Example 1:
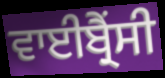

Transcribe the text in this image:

ਵਾਈਬ੍ਰੈਂਸੀ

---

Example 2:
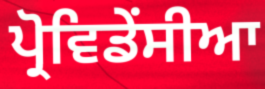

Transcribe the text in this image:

ਪ੍ਰੋਵਿਡੇਂਸੀਆ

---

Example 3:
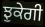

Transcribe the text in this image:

ਝੁਕੇਗੀ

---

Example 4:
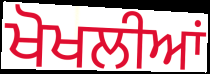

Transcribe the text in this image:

ਖੋਖਲੀਆਂ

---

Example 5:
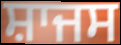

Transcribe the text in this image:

ਸ਼ਾਜਸ